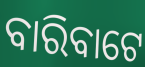
ବାରିବାଟେ